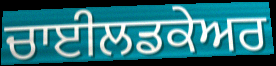
ਚਾਈਲਡਕੇਅਰ